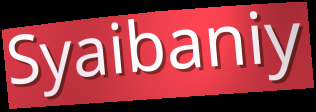
Syaibaniy